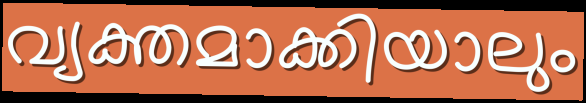
വ്യക്തമാക്കിയാലും